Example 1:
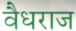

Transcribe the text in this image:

वैधराज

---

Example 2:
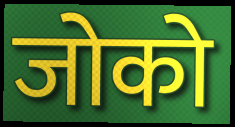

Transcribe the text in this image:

जोको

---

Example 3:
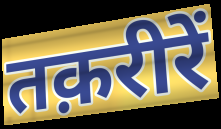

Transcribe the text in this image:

तक़रीरें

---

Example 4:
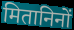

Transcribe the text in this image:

मितानिनों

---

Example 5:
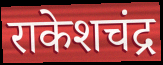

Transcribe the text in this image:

राकेशचंद्र